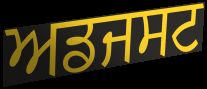
ਅਡਜਸਟ